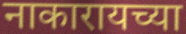
नाकारायच्या